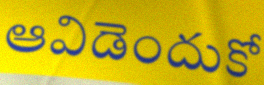
ఆవిడెందుకో